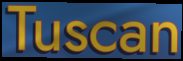
Tuscan